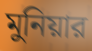
মুনিয়ার